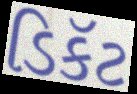
ડિકૅટ